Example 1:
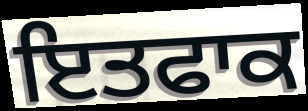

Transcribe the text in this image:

ਇਤਫਾਕ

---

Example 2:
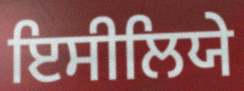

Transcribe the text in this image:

ਇਸੀਲਿਯੇ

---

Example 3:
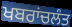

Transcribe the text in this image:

ਖਬਰਾਂਚਲੰਤ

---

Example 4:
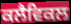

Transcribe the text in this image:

ਕਲੈਵਿਕਲ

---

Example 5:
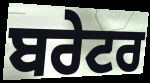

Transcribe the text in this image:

ਬਰੇਟਰ